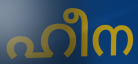
ഹീന